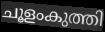
ചൂളംകുത്തി